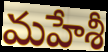
మహేశీ